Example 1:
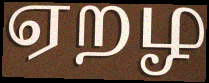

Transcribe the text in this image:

ஏறழ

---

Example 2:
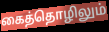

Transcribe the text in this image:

கைத்தொழிலும்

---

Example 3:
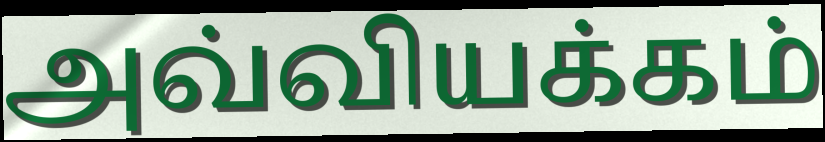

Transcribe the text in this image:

அவ்வியக்கம்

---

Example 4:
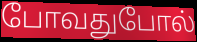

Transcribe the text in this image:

போவதுபோல்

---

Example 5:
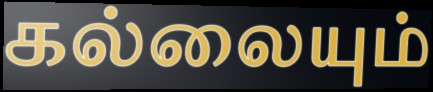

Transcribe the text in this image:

கல்லையும்